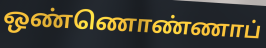
ஒண்ணொண்ணாப்